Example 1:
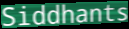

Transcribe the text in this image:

Siddhants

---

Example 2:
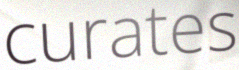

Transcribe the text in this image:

curates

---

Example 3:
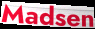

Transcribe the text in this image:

Madsen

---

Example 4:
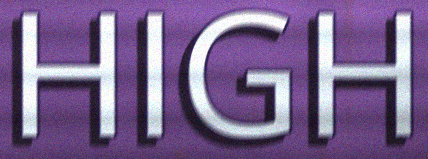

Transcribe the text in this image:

HIGH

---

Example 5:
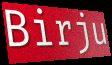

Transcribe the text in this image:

Birju